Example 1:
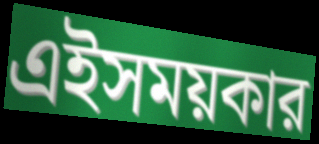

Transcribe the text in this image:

এইসময়কার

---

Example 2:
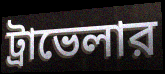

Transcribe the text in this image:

ট্রাভেলার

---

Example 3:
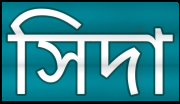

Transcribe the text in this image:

সিদা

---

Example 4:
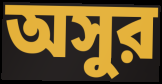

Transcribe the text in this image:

অসুর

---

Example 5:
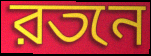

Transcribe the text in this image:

রতনে